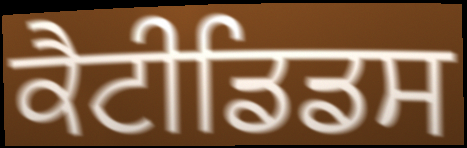
ਕੈਟੀਡਿਡਸ